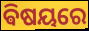
ଵିଷୟରେ